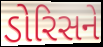
ડોરિસને